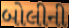
બોલીની